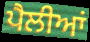
ਪੈਲੀਆਂ